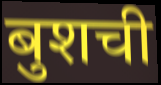
बुशची